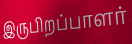
இருபிறப்பாளர்